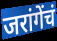
जरांगेंचं